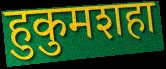
हुकुमशहा